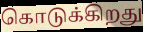
கொடுக்கிறது